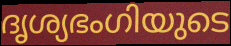
ദൃശ്യഭംഗിയുടെ